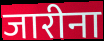
जारीना